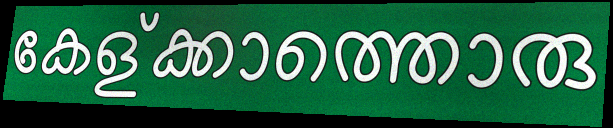
കേള്ക്കാത്തൊരു